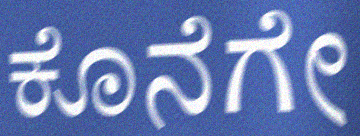
ಕೊನೆಗೇ